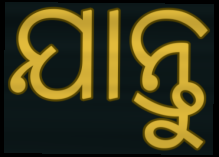
ଯାନ୍ତୁ